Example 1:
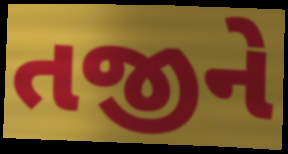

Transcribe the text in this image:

તજીને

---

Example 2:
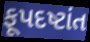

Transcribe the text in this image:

ફૂપદષ્ટાંત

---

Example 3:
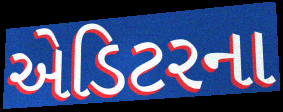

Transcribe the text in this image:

એડિટરના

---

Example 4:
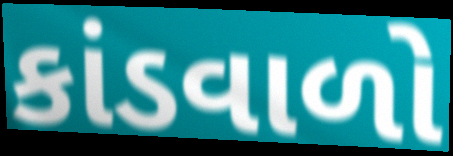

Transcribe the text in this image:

કાંડવાળો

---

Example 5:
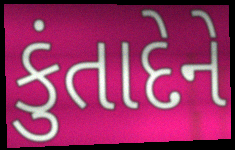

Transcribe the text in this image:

કુંતાદેને